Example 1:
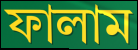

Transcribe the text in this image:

ফালাম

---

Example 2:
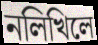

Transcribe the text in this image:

নলিখিলে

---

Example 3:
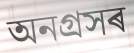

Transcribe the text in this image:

অনগ্ৰসৰ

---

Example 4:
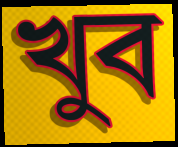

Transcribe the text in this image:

খুব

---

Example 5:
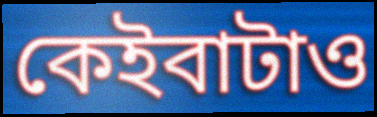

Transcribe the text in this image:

কেইবাটাও